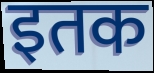
इतक